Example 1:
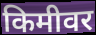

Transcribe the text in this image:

किमीवर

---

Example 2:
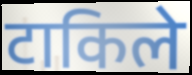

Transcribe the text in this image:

टाकिले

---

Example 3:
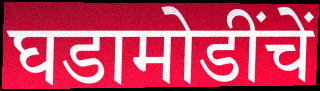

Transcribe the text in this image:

घडामोडींचें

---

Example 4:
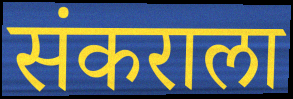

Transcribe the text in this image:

संकराला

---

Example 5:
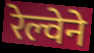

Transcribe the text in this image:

रेल्वेने